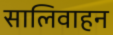
सालिवाहन